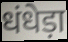
धंधेड़ा